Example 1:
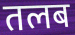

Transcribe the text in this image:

तलब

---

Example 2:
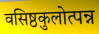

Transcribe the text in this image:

वसिष्ठकुलोत्पन्न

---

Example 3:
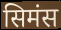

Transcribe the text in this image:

सिमंस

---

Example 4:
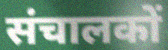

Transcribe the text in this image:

संचालकों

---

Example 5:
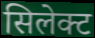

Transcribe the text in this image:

सिलेक्ट